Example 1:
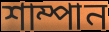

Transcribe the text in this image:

শাম্পান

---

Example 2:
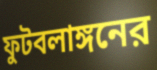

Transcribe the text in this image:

ফুটবলাঙ্গনের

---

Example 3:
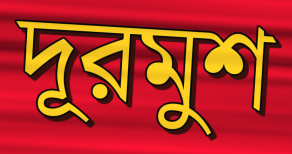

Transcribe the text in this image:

দূরমুশ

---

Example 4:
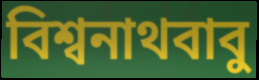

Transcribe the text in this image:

বিশ্বনাথবাবু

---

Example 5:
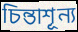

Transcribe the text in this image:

চিন্তাশূন্য